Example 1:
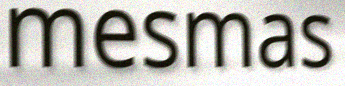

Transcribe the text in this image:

mesmas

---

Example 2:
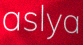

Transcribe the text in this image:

aslya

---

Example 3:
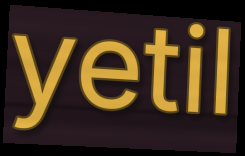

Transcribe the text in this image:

yetil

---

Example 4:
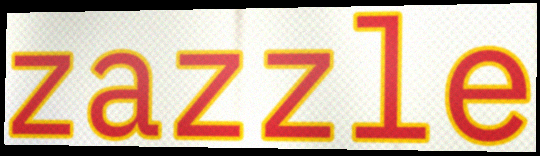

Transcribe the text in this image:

zazzle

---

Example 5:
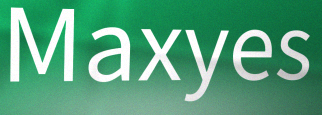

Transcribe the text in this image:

Maxyes